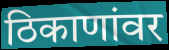
ठिकाणांवर